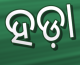
ହଡ଼ା